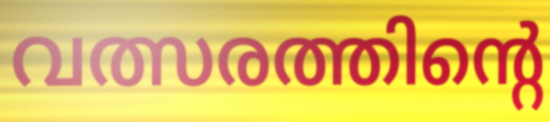
വത്സരത്തിന്റെ